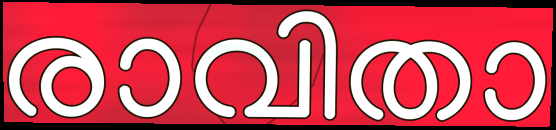
രാവിതാ